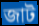
জাট